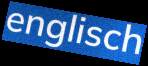
englisch